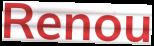
Renou